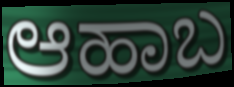
ಆಹಾಬ